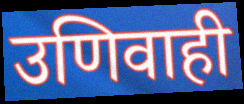
उणिवाही